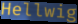
Hellwig